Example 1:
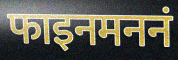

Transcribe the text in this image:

फाइनमननं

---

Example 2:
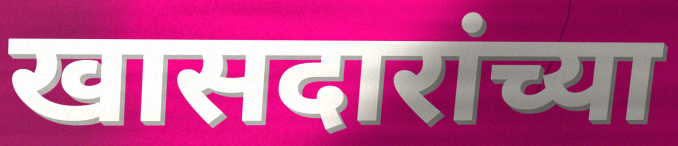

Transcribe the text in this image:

खासदारांच्या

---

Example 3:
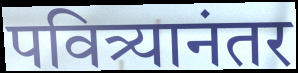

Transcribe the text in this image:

पवित्र्यानंतर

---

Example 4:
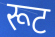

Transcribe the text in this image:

रूट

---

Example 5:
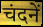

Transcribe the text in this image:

चंदनें